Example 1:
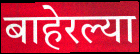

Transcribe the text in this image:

बाहेरल्या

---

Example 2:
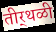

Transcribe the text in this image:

तीर्थळी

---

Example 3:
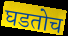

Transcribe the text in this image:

घडतोच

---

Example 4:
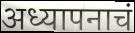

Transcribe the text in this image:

अध्यापनाचं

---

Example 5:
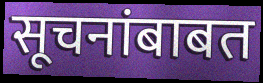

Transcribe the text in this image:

सूचनांबाबत